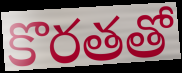
కొరతతో